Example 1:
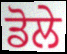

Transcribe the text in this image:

ਡੋਲੇ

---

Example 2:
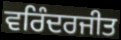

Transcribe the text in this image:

ਵਰਿੰਦਰਜੀਤ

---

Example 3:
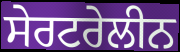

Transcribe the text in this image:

ਸੇਰਟਰੇਲੀਨ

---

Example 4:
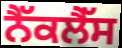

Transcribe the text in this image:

ਨੈੱਕਲੈੱਸ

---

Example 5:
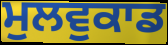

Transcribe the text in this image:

ਮੁਲਵੁਕਾਡ